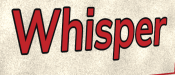
Whisper